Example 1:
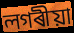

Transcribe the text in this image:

লগৰীয়া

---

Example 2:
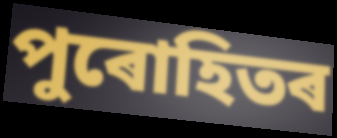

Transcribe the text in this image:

পুৰোহিতৰ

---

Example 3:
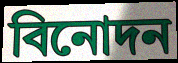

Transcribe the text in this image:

বিনোদন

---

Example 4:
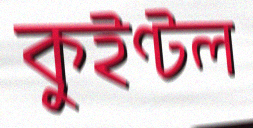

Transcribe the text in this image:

কুইণ্টল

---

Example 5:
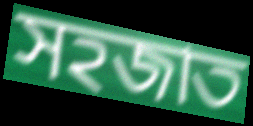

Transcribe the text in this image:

সহজাত